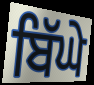
ਬਿੱਘੇ